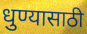
धुण्यासाठी